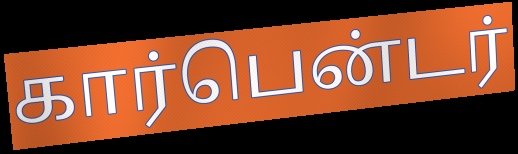
கார்பென்டர்